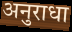
अनुराधा